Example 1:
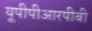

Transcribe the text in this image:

यूपीपीआरपीबी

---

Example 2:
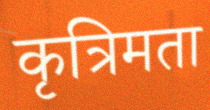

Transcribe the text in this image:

कृत्रिमता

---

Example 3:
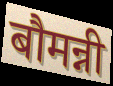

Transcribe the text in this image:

बौमन्नी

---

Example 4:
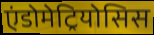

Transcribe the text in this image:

एंडोमेट्रियोसिस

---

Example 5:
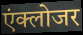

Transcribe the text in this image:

एंक्लोजर